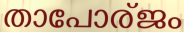
താപോര്ജം